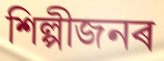
শিল্পীজনৰ